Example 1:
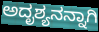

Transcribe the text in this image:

ಅದೃಶ್ಯನನ್ನಾಗಿ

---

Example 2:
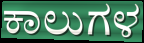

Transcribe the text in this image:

ಕಾಲುಗಳ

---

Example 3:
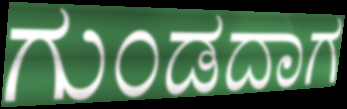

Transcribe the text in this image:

ಗುಂಡದಾಗ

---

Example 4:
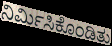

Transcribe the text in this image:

ನಿರ್ಮಿಸಿಕೊಂಡಿತು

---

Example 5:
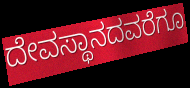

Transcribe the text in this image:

ದೇವಸ್ಥಾನದವರೆಗೂ